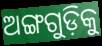
ଅଙ୍ଗଗୁଡ଼ିକୁ